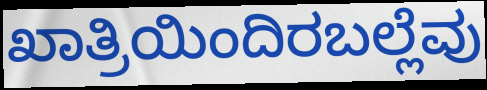
ಖಾತ್ರಿಯಿಂದಿರಬಲ್ಲೆವು